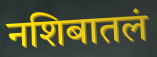
नशिबातलं